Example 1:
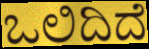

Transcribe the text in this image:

ಒಲಿದಿದೆ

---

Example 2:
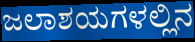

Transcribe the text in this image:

ಜಲಾಶಯಗಳಲ್ಲಿನ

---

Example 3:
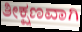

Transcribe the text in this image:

ತೀಕ್ಷಣವಾಗಿ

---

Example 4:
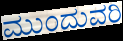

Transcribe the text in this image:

ಮುಂದುವರಿ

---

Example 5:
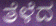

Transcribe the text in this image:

ತೆಳೆದ